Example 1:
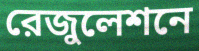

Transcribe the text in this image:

রেজুলেশনে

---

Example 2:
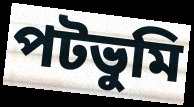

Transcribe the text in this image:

পটভুমি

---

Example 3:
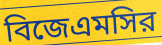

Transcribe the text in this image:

বিজেএমসির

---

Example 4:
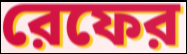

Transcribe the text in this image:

রেফের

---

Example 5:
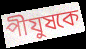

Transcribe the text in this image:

পীযুষকে